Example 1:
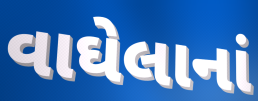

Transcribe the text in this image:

વાઘેલાનાં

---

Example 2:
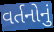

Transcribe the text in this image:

વર્તનોનું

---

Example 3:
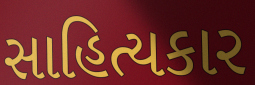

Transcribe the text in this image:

સાહિત્યકાર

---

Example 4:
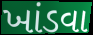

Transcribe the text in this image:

ખાંડવા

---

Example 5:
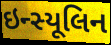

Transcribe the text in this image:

ઇન્સ્યૂલિન